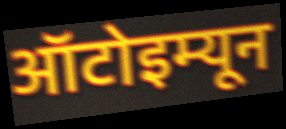
ऑटोइम्यून